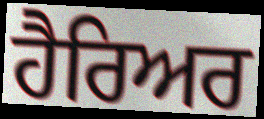
ਹੈਰਿਅਰ